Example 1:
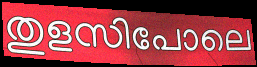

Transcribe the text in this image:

തുളസിപോലെ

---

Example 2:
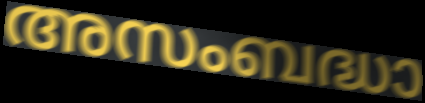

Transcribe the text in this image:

അസംബദ്ധാ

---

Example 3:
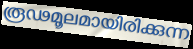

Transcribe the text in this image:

രൂഢമൂലമായിരിക്കുന്ന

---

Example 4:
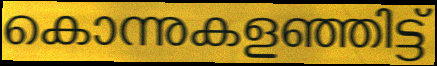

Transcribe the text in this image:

കൊന്നുകളഞ്ഞിട്ട്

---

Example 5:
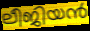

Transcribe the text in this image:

ലീജിയൻ